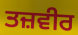
ਤਜ਼ਵੀਰ